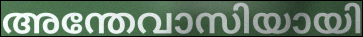
അന്തേവാസിയായി